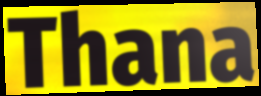
Thana